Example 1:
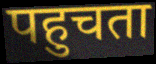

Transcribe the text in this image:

पहुचता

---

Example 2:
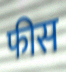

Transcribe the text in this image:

फीस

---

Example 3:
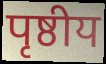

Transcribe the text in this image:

पृष्ठीय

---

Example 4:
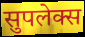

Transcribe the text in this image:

सुपलेक्स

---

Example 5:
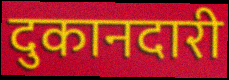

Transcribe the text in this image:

दुकानदारी